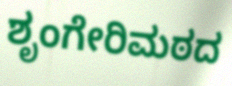
ಶೃಂಗೇರಿಮಠದ